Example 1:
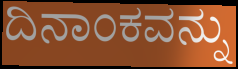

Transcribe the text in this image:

ದಿನಾಂಕವನ್ನು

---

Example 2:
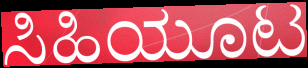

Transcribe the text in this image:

ಸಿಹಿಯೂಟ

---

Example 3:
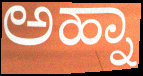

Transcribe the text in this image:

ಅಹ್ನಾ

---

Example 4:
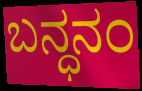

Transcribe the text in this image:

ಬನ್ಧನಂ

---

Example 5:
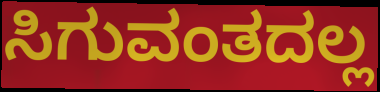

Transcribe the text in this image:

ಸಿಗುವಂತದಲ್ಲ